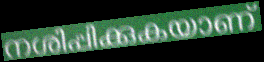
നശിപ്പിക്കുകയാണ്